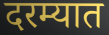
दरम्यात